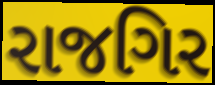
રાજગિર